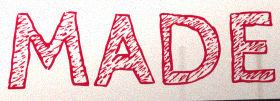
MADE